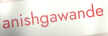
anishgawande